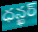
ధన్ఖర్